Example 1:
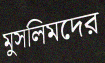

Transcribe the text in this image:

মুসলিমদের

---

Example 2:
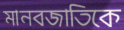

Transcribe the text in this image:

মানবজাতিকে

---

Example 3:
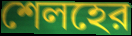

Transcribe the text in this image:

শেলহের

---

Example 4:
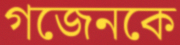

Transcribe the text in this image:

গজেনকে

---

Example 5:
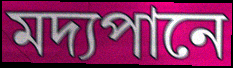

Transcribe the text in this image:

মদ্যপানে